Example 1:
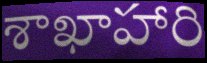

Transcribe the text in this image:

శాఖాహారి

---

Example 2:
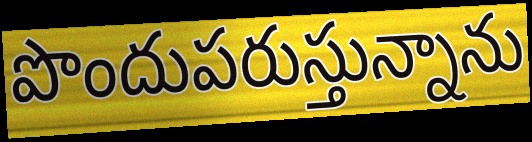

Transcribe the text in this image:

పొందుపరుస్తున్నాను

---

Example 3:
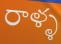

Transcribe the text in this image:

రాళ్ళ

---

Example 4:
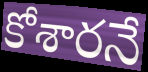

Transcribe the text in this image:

కోశారనే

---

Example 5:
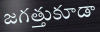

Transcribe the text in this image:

జగత్తుకూడా